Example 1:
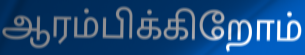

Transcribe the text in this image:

ஆரம்பிக்கிறோம்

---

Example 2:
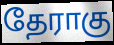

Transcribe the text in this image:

தேராகு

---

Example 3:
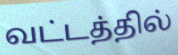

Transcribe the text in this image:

வட்டத்தில்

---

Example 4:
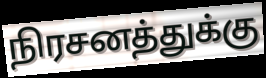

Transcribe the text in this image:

நிரசனத்துக்கு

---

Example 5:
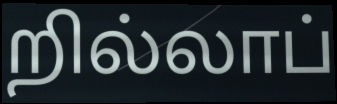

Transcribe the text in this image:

றில்லாப்